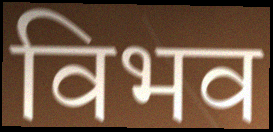
विभव